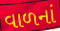
વાળનાં